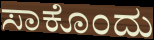
ಸಾಕೊಂದು